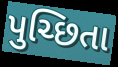
પુચ્છિતા